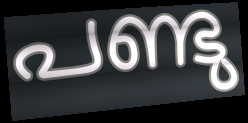
പണ്ടു